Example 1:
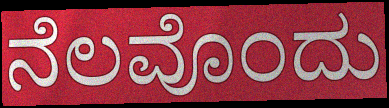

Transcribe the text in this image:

ನೆಲವೊಂದು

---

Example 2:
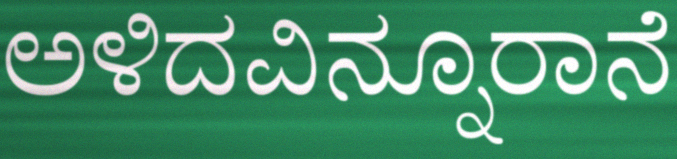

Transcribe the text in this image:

ಅಳಿದವಿನ್ನೂರಾನೆ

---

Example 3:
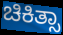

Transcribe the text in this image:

ಚಿಕಿತ್ಸಾ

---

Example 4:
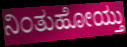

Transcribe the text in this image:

ನಿಂತುಹೋಯ್ತು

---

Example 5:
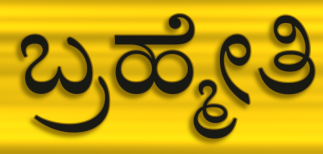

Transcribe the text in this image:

ಬ್ರಹ್ಮೇತಿ